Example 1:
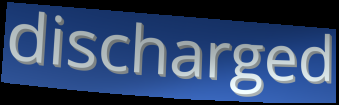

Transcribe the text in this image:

discharged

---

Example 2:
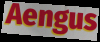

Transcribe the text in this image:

Aengus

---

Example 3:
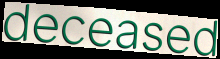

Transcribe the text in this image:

deceased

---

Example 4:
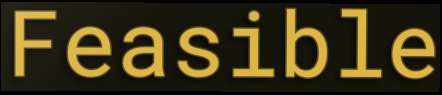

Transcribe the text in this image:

Feasible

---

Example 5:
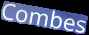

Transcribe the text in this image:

Combes